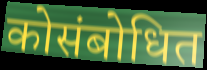
कोसंबोधित